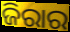
ଜିରାର